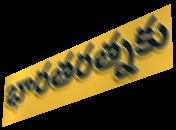
భారతరత్నకు